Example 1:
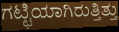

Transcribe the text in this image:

ಗಟ್ಟಿಯಾಗಿರುತ್ತಿತ್ತು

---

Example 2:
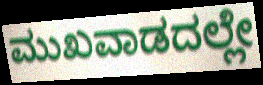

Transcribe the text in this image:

ಮುಖವಾಡದಲ್ಲೇ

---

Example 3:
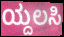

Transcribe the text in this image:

ಯ್ದಲಸಿ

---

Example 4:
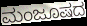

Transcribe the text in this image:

ಮಂಜೂಷದ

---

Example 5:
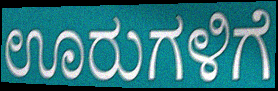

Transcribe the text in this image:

ಊರುಗಳಿಗೆ